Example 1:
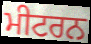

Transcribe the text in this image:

ਮੀਟਰਨ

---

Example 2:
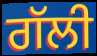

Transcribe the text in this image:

ਗੱਲੀ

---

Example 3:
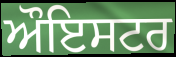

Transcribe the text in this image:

ਔਇਸਟਰ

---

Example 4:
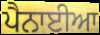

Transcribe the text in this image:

ਪੈਨਾਈਆ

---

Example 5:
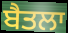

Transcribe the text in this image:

ਬੈਤਲਾ